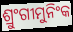
ଶ୍ରୁଂଗୀମୁନିଂକ